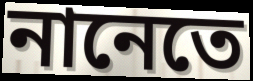
নানেতে